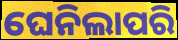
ଘେନିଲାପରି